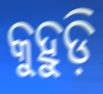
କୁହୁଡ଼ି